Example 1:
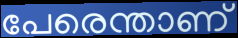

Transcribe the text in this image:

പേരെന്താണ്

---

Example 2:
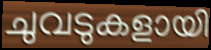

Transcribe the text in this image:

ചുവടുകളായി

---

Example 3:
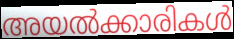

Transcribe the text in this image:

അയൽക്കാരികൾ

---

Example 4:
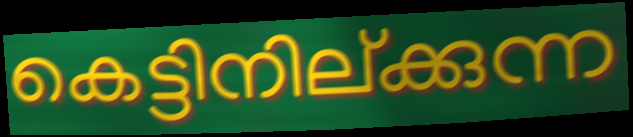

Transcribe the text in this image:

കെട്ടിനില്ക്കുന്ന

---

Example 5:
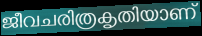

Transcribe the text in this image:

ജീവചരിത്രകൃതിയാണ്